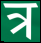
त्र